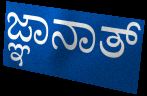
ಜ್ಞಾನಾತ್